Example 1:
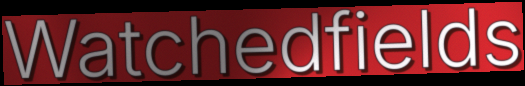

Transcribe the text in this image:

Watchedfields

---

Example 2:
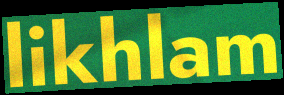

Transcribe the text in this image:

likhlam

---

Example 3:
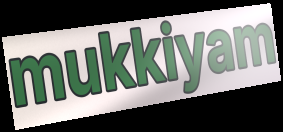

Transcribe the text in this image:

mukkiyam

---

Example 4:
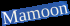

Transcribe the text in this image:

Mamoon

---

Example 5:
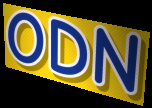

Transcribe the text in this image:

ODN